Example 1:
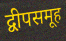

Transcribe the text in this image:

द्वीपसमूह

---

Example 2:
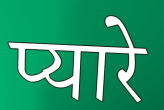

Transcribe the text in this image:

प्यारे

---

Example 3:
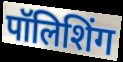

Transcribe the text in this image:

पॉलिशिंग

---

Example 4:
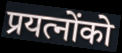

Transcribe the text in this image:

प्रयत्नोंको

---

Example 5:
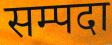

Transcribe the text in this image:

सम्पदा